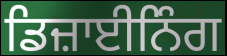
ਡਿਜ਼ਾਈਨਿੰਗ